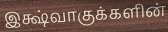
இக்ஷ்வாகுக்களின்